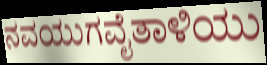
ನವಯುಗವೈತಾಳಿಯು